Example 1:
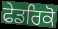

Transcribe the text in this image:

ਫੇਡਰਿਕੋ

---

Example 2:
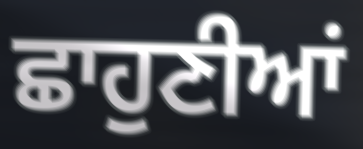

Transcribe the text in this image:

ਛਾਹੁਣੀਆਂ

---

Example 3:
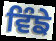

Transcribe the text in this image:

ਵਿੰਙੇ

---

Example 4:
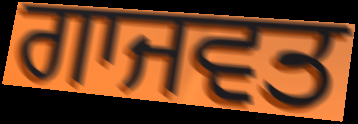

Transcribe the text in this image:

ਗਾਜਵਤ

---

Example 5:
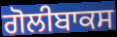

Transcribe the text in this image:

ਗੋਲੀਬਾਕਸ